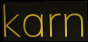
karn